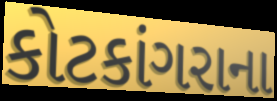
કોટકાંગરાના